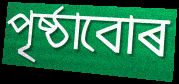
পৃষ্ঠাবোৰ